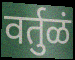
वर्तुळं